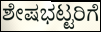
ಶೇಷಭಟ್ಟರಿಗೆ